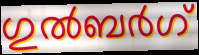
ഗുൽബർഗ്